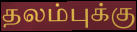
தலம்புக்கு